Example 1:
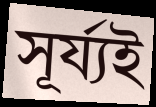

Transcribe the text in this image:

সূৰ্য্যই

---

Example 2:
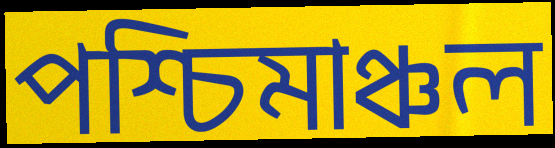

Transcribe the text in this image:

পশ্চিমাঞ্চল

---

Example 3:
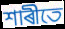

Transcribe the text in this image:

শাৰীতে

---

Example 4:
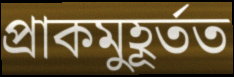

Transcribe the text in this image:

প্ৰাকমুহূৰ্তত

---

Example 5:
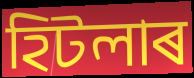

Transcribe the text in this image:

হিটলাৰ